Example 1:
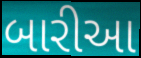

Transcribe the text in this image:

બારીઆ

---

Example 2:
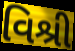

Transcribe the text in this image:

વિશ્રી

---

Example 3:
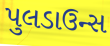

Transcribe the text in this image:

પુલડાઉન્સ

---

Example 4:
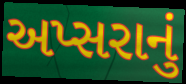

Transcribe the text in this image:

અપ્સરાનું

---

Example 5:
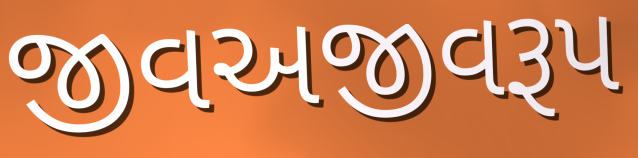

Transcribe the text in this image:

જીવઅજીવરૂપ